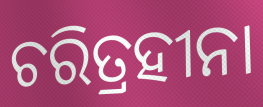
ଚରିତ୍ରହୀନା